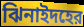
ঝিনাইদহের